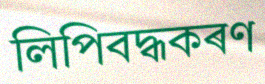
লিপিবদ্ধকৰণ